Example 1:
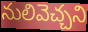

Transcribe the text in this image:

నులివెచ్చని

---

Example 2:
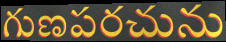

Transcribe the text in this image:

గుణపరచును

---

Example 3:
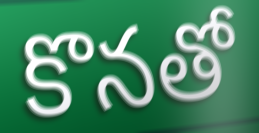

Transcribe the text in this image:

కొనతో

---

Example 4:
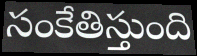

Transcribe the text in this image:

సంకేతిస్తుంది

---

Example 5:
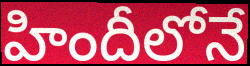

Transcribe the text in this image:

హిందీలోనే